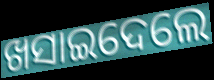
ଖସାଇଦେଲେ